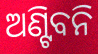
ଅଣ୍ଟିବନି